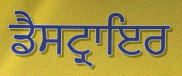
ਡੈਸਟ੍ਰਾਇਰ